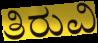
ತಿರುವಿ